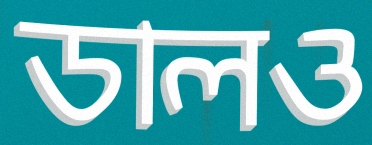
ডালও